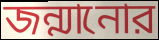
জন্মানোর